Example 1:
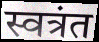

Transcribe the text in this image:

स्वत्रंत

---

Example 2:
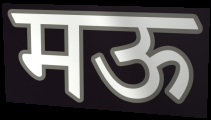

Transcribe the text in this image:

मऊ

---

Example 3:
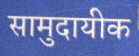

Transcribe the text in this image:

सामुदायीक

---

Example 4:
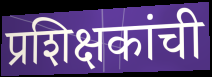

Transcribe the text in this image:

प्रशिक्षकांची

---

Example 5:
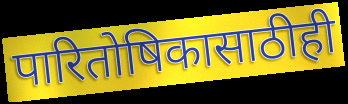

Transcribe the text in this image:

पारितोषिकासाठीही